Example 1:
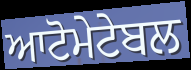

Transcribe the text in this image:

ਆਟੋਮੇਟੇਬਲ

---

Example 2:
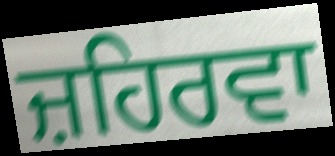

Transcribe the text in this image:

ਜ਼ਹਿਰਵਾ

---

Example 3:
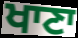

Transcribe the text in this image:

ਖਾਣਾ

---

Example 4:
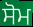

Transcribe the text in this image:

ਸੋਮ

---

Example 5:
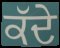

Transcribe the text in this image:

ਕੱਦੇ